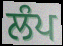
ਲੰਪ